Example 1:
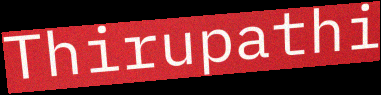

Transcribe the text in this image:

Thirupathi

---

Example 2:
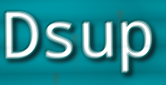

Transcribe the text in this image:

Dsup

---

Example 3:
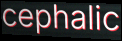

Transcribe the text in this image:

cephalic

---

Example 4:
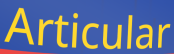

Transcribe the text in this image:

Articular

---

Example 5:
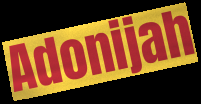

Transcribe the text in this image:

Adonijah